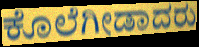
ಕೊಲೆಗೀಡಾದರು